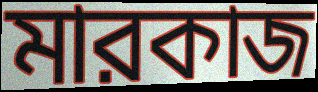
মারকাজ